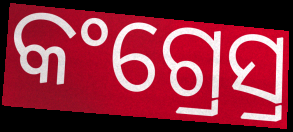
କଂଗ୍ରେସ୍ର